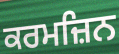
ਕਰਮਜ਼ਿਨ